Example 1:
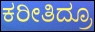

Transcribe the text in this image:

ಕರೀತಿದ್ರೂ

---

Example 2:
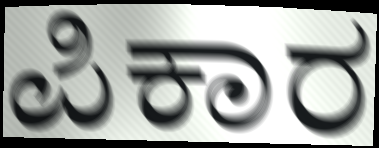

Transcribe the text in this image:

ಪಿಕಾರ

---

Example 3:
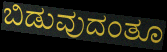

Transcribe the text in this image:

ಬಿಡುವುದಂತೂ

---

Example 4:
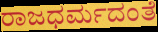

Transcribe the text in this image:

ರಾಜಧರ್ಮದಂತೆ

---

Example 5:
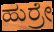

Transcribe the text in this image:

ಹುರ್ರೇ